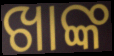
ଖାଙ୍କ